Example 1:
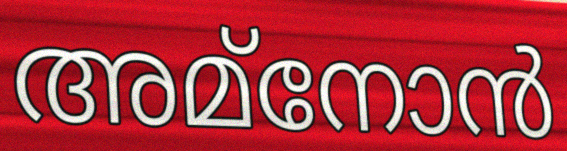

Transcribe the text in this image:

അമ്നോൻ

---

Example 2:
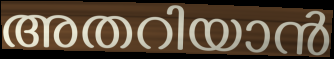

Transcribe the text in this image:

അതറിയാൻ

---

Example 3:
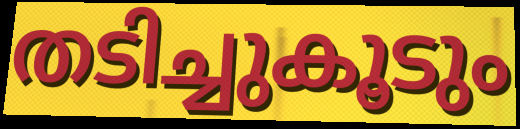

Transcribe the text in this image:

തടിച്ചുകൂടും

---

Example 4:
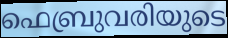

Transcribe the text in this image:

ഫെബ്രുവരിയുടെ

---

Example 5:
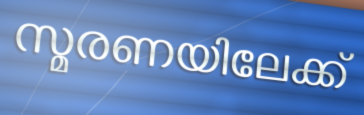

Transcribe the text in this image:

സ്മരണയിലേക്ക്